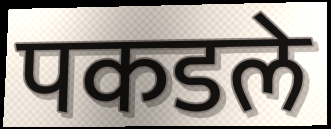
पकडले